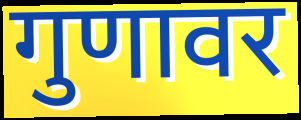
गुणावर